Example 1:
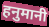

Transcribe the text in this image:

हनुमानी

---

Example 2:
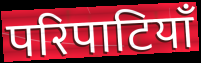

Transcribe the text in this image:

परिपाटियाँ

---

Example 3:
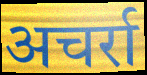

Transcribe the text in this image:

अचर्रा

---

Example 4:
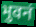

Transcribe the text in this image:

भुवनं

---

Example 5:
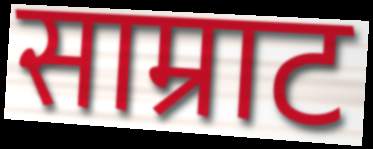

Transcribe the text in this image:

साम्राट